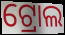
ଟ୍ରୋଲ